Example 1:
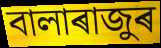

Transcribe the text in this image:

বালাৰাজুৰ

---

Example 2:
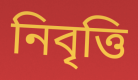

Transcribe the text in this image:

নিবৃত্তি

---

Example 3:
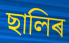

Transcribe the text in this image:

ছালিৰ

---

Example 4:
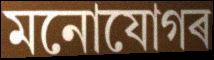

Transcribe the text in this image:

মনোযোগৰ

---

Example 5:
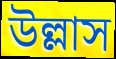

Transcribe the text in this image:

উল্লাস